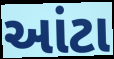
આંટા